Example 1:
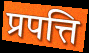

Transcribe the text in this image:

प्रपत्ति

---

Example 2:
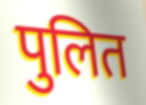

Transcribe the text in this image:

पुलित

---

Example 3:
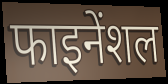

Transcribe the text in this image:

फाइनेंशल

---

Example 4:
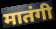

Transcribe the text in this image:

मातंगी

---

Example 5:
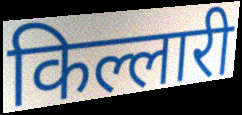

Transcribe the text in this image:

किल्लारी